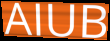
AIUB